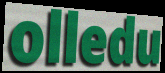
olledu